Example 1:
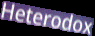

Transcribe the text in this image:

Heterodox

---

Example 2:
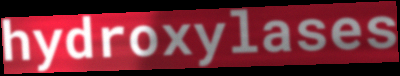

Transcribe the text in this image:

hydroxylases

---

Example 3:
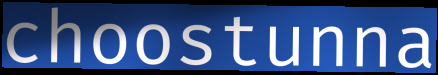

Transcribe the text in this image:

choostunna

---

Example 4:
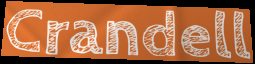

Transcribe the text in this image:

Crandell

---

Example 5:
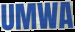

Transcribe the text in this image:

UMWA